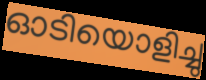
ഓടിയൊളിച്ചു